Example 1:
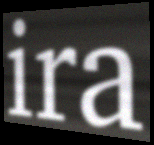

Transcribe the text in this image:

ira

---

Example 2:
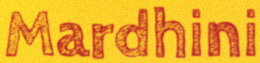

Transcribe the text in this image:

Mardhini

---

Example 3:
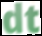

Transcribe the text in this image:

dt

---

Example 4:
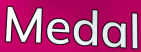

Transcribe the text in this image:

Medal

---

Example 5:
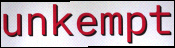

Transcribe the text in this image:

unkempt